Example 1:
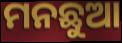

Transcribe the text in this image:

ମନଛୁଆ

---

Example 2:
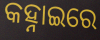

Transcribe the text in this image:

କହ୍ନାଇରେ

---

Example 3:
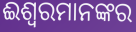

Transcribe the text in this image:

ଈଶ୍ୱରମାନଙ୍କର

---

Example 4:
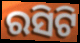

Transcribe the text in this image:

ରସିଟି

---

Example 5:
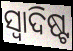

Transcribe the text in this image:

ସ୍ବାଦିଷ୍ଟ